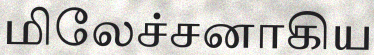
மிலேச்சனாகிய